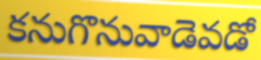
కనుగొనువాడెవడో